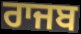
ਰਾਜਬ